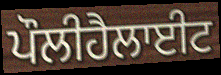
ਪੌਲੀਹੈਲਾਈਟ